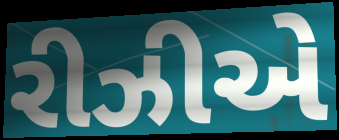
રીઝીએ